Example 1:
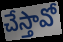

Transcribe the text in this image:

చేస్తావో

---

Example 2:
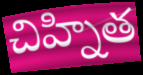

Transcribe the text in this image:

చిహ్నిత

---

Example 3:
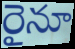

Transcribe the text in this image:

రైనూ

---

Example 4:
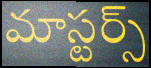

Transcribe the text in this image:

మాస్టర్స్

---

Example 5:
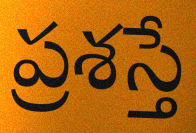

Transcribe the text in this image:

ప్రశస్తే